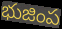
భుజింప